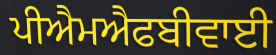
ਪੀਐਮਐਫਬੀਵਾਈ